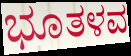
ಭೂತಳವ